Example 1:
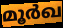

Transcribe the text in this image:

മൂർഖ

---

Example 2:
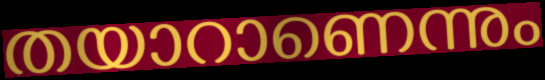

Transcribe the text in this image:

തയാറാണെന്നും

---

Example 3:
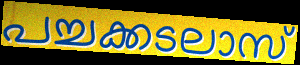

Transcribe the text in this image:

പച്ചക്കടലാസ്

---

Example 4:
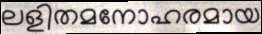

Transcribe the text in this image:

ലളിതമനോഹരമായ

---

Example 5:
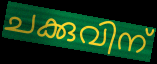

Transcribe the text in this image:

ചക്കുവിന്